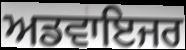
ਅਡਵਾਇਜਰ